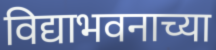
विद्याभवनाच्या